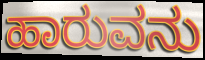
ಹಾರುವನು